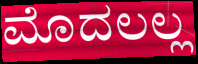
ಮೊದಲಲ್ಲ